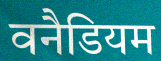
वनैडियम